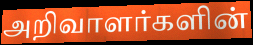
அறிவாளர்களின்